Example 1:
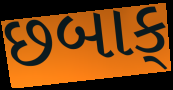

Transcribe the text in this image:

છબાક્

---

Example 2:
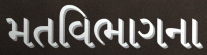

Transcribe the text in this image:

મતવિભાગના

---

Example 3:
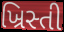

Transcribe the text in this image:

ખ્રિસ્તી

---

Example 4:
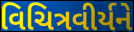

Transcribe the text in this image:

વિચિત્રવીર્યને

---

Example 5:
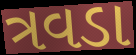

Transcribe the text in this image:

ત્રવડા